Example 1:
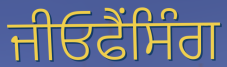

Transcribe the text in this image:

ਜੀਓਫੈਂਸਿੰਗ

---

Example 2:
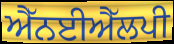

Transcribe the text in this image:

ਐੱਨਈਐੱਲਪੀ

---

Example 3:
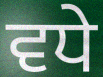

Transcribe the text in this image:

ਵਧੇ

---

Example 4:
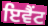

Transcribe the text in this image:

ਇਵੈਂਟ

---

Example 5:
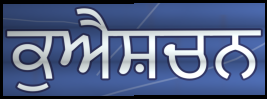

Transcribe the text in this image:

ਕੁਐਸ਼ਚਨ